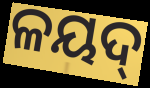
ଳୟଦ୍